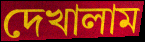
দেখালাম